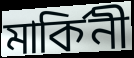
মার্কিনী